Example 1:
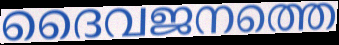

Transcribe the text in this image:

ദൈവജനത്തെ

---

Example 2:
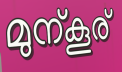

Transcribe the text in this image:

മുന്കൂര്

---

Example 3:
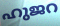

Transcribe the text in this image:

ഹുജറ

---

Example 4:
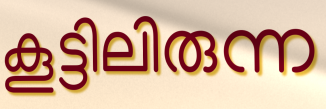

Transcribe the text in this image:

കൂട്ടിലിരുന്ന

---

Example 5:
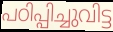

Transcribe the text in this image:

പഠിപ്പിച്ചുവിട്ട